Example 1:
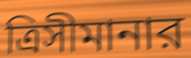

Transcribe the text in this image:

ত্রিসীমানার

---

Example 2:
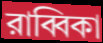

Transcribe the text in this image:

রাব্বিকা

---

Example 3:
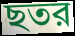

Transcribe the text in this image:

ছতর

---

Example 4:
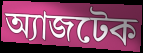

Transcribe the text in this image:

অ্যাজটেক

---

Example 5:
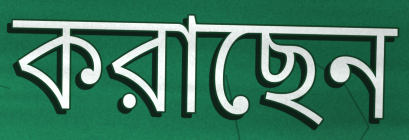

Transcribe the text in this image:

করাছেন